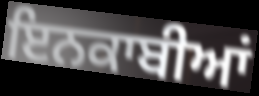
ਇਨਕਾਬੀਆਂ